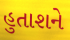
હુતાશને